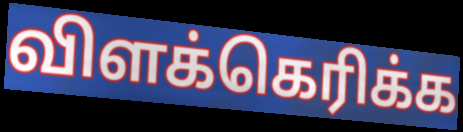
விளக்கெரிக்க